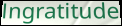
Ingratitude